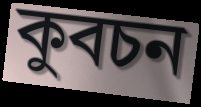
কুবচন